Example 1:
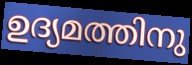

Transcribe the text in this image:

ഉദ്യമത്തിനു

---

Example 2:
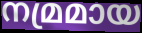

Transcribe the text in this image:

നമ്രമായ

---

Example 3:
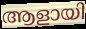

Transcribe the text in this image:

ആളായി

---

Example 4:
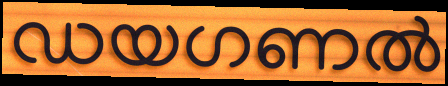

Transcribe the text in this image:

ഡയഗണൽ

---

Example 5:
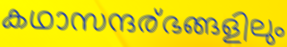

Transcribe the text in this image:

കഥാസന്ദര്ഭങ്ങളിലും